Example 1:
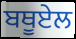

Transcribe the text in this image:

ਬਥੂਏਲ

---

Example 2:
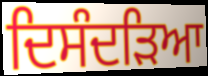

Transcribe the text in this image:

ਦਿਸੰਦੜਿਆ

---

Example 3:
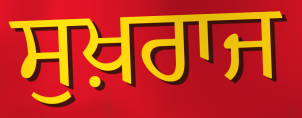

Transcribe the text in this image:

ਸੁਖ਼ਰਾਜ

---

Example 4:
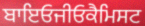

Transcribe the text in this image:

ਬਾਇਓਜੀਓਕੈਮਿਸਟ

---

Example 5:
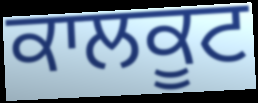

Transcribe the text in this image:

ਕਾਲਕੂਟ